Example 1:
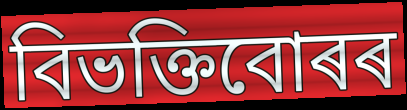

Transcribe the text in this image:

বিভক্তিবোৰৰ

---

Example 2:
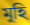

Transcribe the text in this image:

মুহি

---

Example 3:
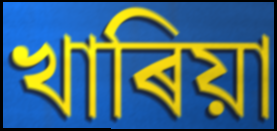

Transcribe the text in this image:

খাৰিয়া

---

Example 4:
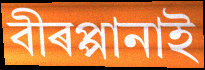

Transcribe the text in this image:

বীৰপ্পানাই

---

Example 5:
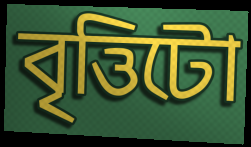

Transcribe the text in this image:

বৃত্তিটো